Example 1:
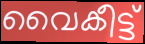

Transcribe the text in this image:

വൈകീട്ട്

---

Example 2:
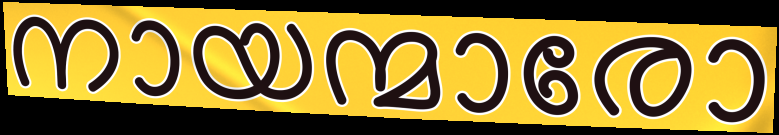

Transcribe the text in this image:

നായന്മാരോ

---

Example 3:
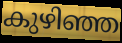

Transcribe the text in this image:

കുഴിഞ്ഞ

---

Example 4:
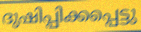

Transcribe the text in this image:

ദുഷിപ്പിക്കപ്പെട്ടു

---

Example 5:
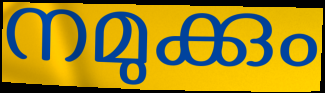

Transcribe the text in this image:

നമുക്കും